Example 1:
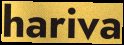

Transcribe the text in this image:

hariva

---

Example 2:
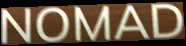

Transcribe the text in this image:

NOMAD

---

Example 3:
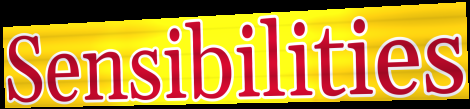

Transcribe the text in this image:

Sensibilities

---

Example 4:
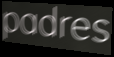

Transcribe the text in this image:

padres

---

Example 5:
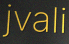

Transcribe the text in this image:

jvali